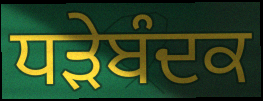
ਧੜੇਬੰਦਕ